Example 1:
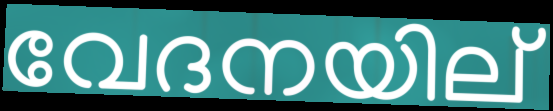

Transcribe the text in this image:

വേദനയില്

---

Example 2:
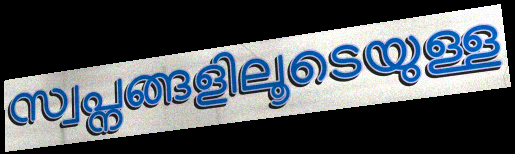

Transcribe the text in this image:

സ്വപ്നങ്ങളിലൂടെയുള്ള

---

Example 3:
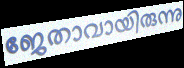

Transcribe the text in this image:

ജേതാവായിരുന്നു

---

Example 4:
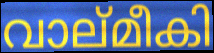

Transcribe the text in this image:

വാല്മീകി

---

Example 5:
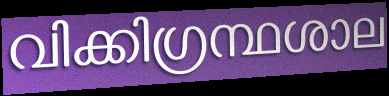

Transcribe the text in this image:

വിക്കിഗ്രന്ഥശാല